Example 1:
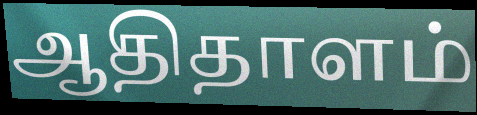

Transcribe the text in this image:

ஆதிதாளம்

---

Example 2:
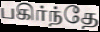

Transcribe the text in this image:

பகிர்ந்தே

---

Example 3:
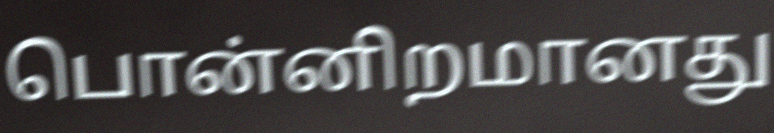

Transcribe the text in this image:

பொன்னிறமானது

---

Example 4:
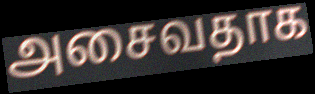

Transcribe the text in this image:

அசைவதாக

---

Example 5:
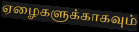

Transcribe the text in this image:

ஏழைகளுக்காகவும்